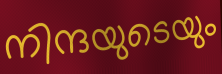
നിന്ദയുടെയും